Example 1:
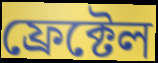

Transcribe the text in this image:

ফ্ৰেক্টেল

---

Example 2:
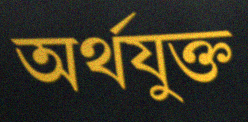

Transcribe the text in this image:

অৰ্থযুক্ত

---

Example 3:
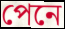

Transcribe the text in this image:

পেনে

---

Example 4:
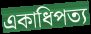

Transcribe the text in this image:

একাধিপত্য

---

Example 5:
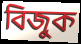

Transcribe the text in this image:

বিজুক